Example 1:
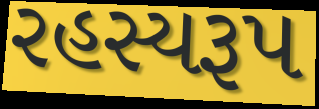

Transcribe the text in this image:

રહસ્યરૂપ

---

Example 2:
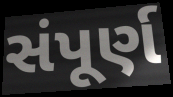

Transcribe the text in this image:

સંપૂર્ણ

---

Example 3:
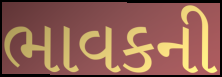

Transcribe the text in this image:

ભાવકની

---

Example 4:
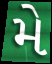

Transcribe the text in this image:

મે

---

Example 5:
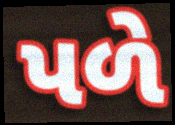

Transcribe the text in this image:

પળે